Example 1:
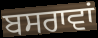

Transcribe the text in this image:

ਬਸਰਾਵਾਂ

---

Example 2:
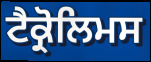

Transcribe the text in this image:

ਟੈਕ੍ਰੋਲਿਮਸ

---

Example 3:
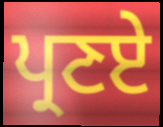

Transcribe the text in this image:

ਪ੍ਰਣਏ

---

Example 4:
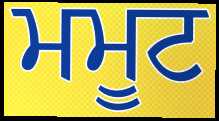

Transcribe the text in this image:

ਮਮੂਟ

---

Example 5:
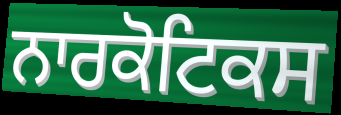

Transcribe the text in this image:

ਨਾਰਕੋਟਿਕਸ